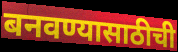
बनवण्यासाठीची